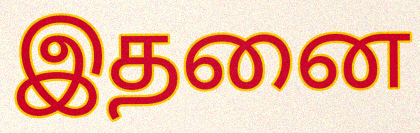
இதனை